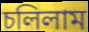
চলিলাম